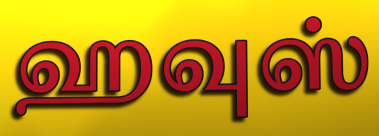
ஹவுஸ்